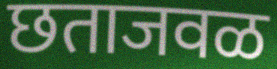
छताजवळ